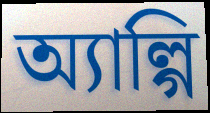
অ্যাল্গি